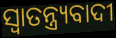
ସ୍ୱାତନ୍ତ୍ର୍ୟବାଦୀ